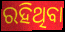
ରହିଥିବା